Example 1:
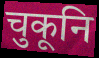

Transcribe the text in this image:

चुकूनि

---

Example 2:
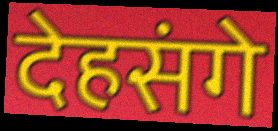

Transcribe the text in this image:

देहसंगे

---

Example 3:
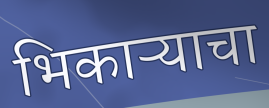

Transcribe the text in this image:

भिकाऱ्याचा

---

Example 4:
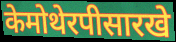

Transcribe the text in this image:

केमोथेरपीसारखे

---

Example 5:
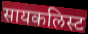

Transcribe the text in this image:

सायकलिस्ट